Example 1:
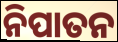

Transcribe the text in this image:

ନିପାତନ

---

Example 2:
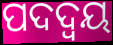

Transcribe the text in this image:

ପଦଦ୍ଵୟ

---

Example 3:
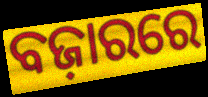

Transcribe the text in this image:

ବଜ଼ାରରେ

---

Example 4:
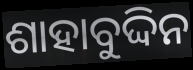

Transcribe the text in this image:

ଶାହାବୁଦ୍ଦିନ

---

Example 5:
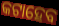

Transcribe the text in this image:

କଟାହେବ